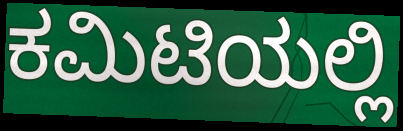
ಕಮಿಟಿಯಲ್ಲಿ